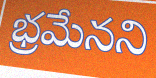
భ్రమేనని